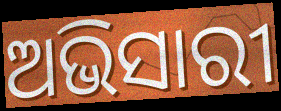
ଅଭିସାରୀ